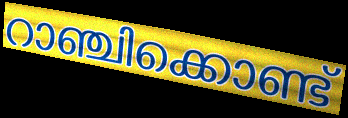
റാഞ്ചിക്കൊണ്ട്